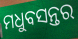
ମଧୁବସନ୍ତର